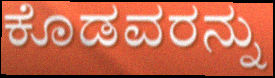
ಕೊಡವರನ್ನು